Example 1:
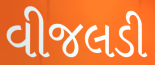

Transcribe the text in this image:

વીજલડી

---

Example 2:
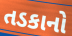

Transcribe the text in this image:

તડકાનો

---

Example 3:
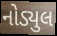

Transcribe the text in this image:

નોડ્યુલ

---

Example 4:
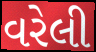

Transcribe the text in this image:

વરેલી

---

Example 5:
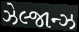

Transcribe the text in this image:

ઝેલ્જાન્ઝ